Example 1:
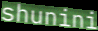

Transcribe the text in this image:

shunini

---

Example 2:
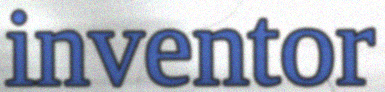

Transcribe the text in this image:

inventor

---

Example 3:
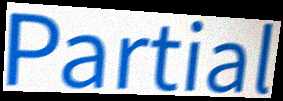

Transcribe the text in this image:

Partial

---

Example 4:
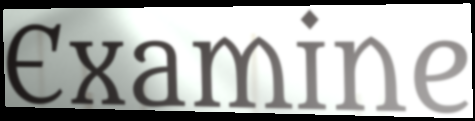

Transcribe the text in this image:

Examine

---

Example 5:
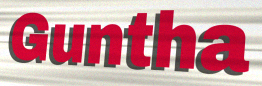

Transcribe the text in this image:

Guntha